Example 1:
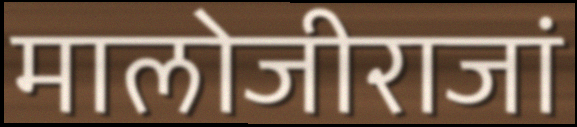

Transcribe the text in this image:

मालोजीराजां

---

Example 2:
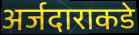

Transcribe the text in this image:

अर्जदाराकडे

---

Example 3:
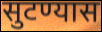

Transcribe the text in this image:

सुटण्यास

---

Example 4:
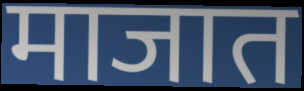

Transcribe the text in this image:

माजात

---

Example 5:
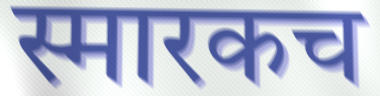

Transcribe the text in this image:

स्मारकच